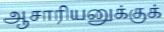
ஆசாரியனுக்குக்